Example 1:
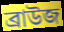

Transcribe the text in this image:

ব্রাউজ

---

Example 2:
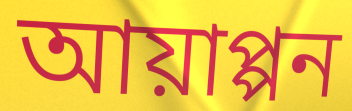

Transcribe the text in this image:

আয়াপ্পন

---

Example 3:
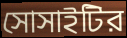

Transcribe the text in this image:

সোসাইটির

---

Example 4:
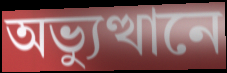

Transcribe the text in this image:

অভ্যুত্থানে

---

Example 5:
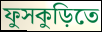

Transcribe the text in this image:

ফুসকুড়িতে